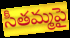
సీతమ్మపై